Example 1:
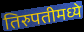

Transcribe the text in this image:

तिरुपतीमध्ये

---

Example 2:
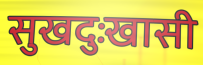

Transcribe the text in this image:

सुखदुःखासी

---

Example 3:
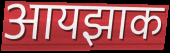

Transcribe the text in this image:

आयझाक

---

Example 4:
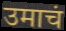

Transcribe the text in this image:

उमाचं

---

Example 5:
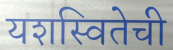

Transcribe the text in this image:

यशस्वितेची